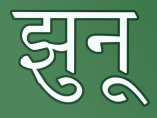
झुनू